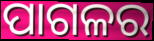
ପାଗଳର